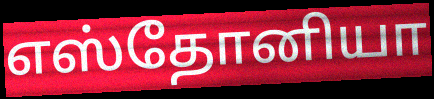
எஸ்தோனியா